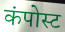
कंपोस्ट